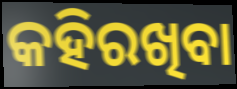
କହିରଖିବା